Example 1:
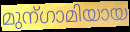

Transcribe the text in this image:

മുന്ഗാമിയായ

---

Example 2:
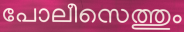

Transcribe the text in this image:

പോലീസെത്തും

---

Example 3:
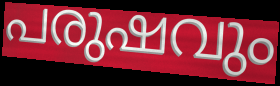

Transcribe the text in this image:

പരുഷവും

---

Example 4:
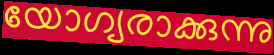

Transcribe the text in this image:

യോഗ്യരാക്കുന്നു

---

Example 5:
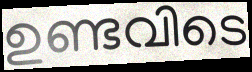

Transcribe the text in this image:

ഉണ്ടവിടെ